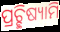
ପ୍ରଚ୍ଛିଷ୍ୟାମି